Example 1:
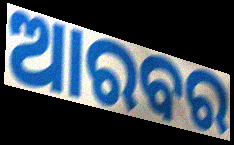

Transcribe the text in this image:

ଆରବର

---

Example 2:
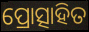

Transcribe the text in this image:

ପ୍ରୋତ୍ସାହିତ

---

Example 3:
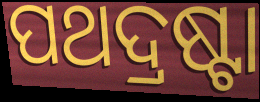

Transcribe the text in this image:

ପଥଦ୍ରଷ୍ଟା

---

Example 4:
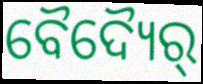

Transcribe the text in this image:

ବୈଦ୍ୟୈର୍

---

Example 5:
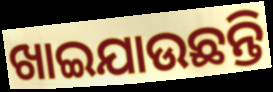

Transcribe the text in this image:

ଖାଇଯାଉଛନ୍ତି